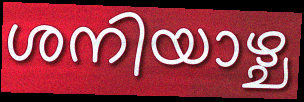
ശനിയാഴ്ച